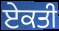
ਏਕਤੀ